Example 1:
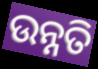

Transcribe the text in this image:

ଉନ୍ନତି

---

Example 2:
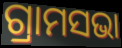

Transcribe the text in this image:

ଗ୍ରାମସଭା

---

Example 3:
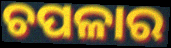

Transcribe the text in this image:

ଚପଳାର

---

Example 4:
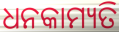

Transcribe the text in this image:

ଧନକାମ୍ୟତି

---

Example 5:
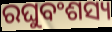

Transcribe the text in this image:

ରଘୁବଂଶସ୍ୟ